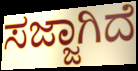
ಸಜ್ಜಾಗಿದೆ